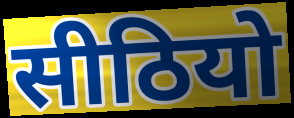
सीठियो